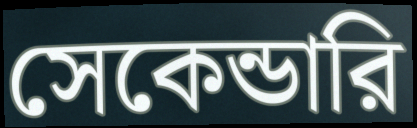
সেকেন্ডারি